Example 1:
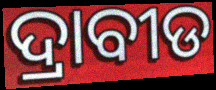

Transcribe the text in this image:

ଦ୍ରାବୀଡ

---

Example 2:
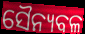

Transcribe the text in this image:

ସୈନ୍ୟବଳ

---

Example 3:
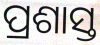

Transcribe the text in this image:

ପ୍ରଶାସ୍ତ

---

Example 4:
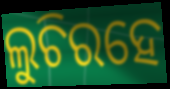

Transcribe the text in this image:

ଲୁଚିରହେ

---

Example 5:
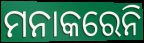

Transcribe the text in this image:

ମନାକରେନି